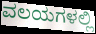
ವಲಯಗಳಲ್ಲಿ